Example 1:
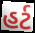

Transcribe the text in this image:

હર્ટ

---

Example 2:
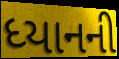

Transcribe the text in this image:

ધ્યાનની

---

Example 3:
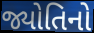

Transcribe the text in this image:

જ્યોતિનો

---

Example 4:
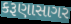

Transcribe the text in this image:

કરૂણાસાગર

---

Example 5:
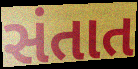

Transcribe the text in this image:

સંતાત